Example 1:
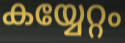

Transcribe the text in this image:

കയ്യേറ്റം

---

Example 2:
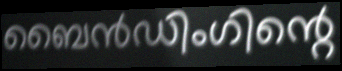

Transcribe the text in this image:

ബൈൻഡിംഗിന്റെ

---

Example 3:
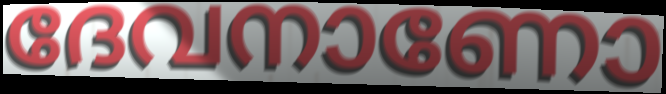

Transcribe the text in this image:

ദേവനാണോ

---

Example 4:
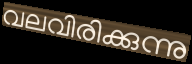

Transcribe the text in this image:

വലവിരിക്കുന്നു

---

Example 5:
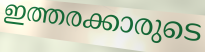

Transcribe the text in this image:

ഇത്തരക്കാരുടെ